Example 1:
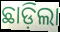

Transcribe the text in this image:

ଛାଡ଼ିଲା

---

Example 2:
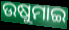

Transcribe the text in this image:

ଉଷୁମାଇ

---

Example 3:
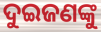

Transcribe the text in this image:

ଦୁଇଜଣଙ୍କୁ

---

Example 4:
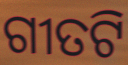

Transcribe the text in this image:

ଗୀତଟି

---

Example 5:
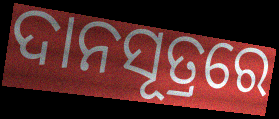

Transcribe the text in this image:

ଦାନସୂତ୍ରରେ